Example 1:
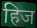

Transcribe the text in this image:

हिज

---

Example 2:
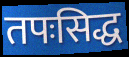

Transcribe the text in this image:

तपःसिद्ध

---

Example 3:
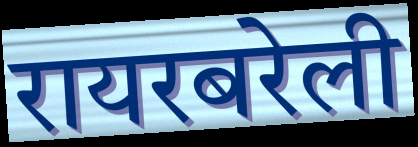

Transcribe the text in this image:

रायरबरेली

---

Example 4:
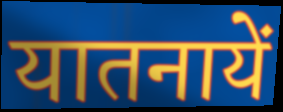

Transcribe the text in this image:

यातनायें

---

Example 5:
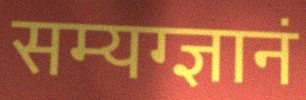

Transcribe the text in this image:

सम्यग्ज्ञानं